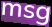
msg